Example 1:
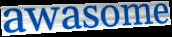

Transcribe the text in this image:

awasome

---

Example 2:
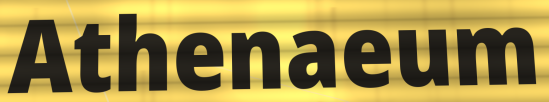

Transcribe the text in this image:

Athenaeum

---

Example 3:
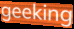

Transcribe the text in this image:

geeking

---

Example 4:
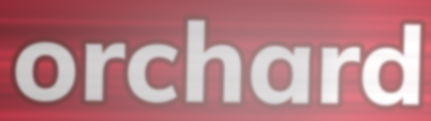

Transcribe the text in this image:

orchard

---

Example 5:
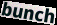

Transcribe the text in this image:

bunch